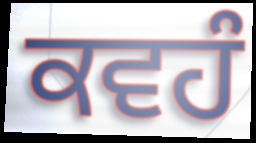
ਕਵਹੰ